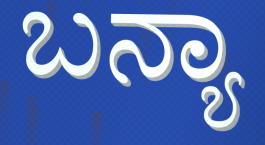
ಬನ್ಯಾ